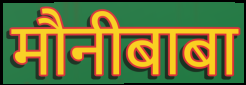
मौनीबाबा